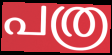
പത്ര